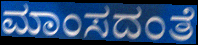
ಮಾಂಸದಂತೆ